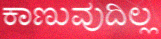
ಕಾಣುವುದಿಲ್ಲ